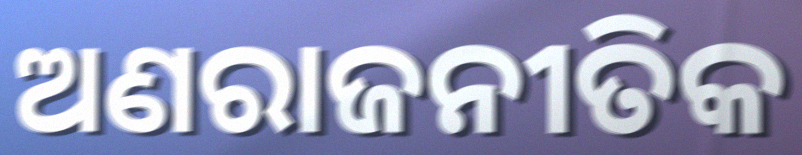
ଅଣରାଜନୀତିକ